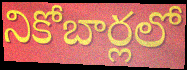
నికోబార్లలో